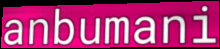
anbumani